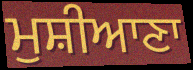
ਮੁਸ਼ੀਆਣਾ